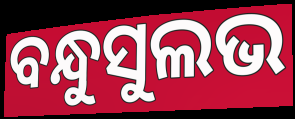
ବନ୍ଧୁସୁଲଭ